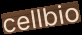
cellbio